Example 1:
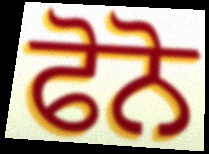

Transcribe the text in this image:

ਫੋਨੋ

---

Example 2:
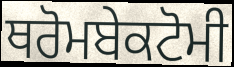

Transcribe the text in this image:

ਥਰੋਮਬੇਕਟੋਮੀ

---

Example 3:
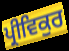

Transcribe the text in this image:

ਪ੍ਰੀਵਿਕੁਰ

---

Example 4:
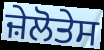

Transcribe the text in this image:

ਜ਼ੇਲੋਤੇਸ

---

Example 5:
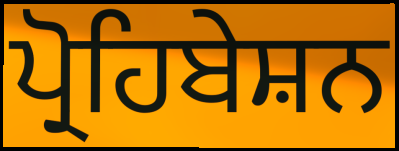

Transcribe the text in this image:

ਪ੍ਰੋਹਿਬੇਸ਼ਨ